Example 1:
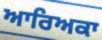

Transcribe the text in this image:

ਆਰਿਅਕਾ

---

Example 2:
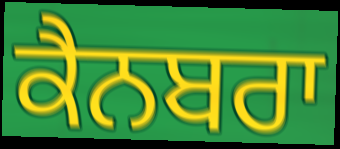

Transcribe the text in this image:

ਕੈਨਬਰਾ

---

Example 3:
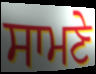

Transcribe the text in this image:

ਸਾਮਣੇ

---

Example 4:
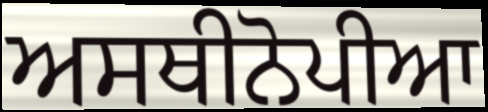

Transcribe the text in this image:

ਅਸਥੀਨੋਪੀਆ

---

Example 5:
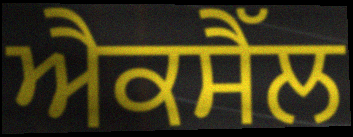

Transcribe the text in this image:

ਐਕਸੈੱਲ